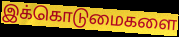
இக்கொடுமைகளை